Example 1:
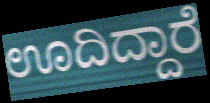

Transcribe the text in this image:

ಊದಿದ್ದಾರೆ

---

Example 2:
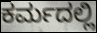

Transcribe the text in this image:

ಕರ್ಮದಲ್ಲಿ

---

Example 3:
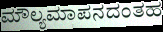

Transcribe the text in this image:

ಮೌಲ್ಯಮಾಪನದಂತಹ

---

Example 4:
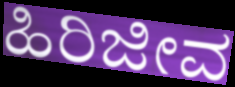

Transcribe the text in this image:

ಹಿರಿಜೀವ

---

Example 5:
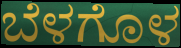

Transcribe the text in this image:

ಬೆಳಗೊಳ